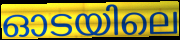
ഓടയിലെ